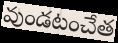
వుండటంచేత